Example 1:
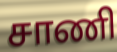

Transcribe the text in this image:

சாணி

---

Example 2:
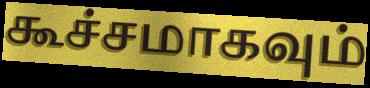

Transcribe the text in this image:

கூச்சமாகவும்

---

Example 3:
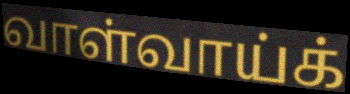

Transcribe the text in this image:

வாள்வாய்க்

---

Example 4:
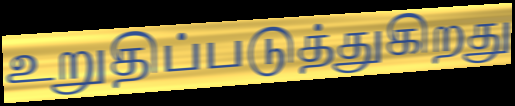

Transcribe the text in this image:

உறுதிப்படுத்துகிறது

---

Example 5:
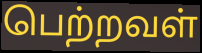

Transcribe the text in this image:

பெற்றவள்